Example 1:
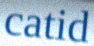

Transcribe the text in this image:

catid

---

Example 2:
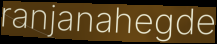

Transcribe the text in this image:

ranjanahegde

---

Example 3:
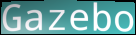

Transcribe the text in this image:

Gazebo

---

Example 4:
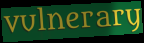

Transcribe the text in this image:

vulnerary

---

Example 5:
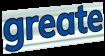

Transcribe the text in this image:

greate